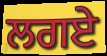
ਲਗਏ